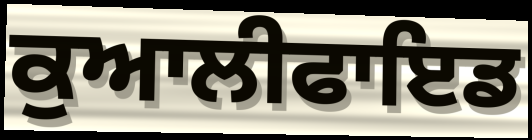
ਕੁਆਲੀਫਾਇਡ